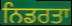
ਨਿਡਰਤਾ